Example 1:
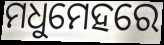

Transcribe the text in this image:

ମଧୁମେହରେ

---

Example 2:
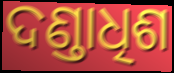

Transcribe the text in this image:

ଦଣ୍ଡାଧିଶ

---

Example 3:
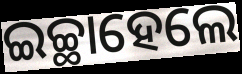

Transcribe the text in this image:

ଇଚ୍ଛାହେଲେ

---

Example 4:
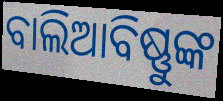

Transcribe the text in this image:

ବାଲିଆବିଷ୍ଣୁଙ୍କ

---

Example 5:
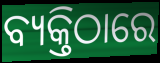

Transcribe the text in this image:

ବ୍ୟକ୍ତିଠାରେ